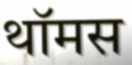
थॉमस